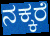
ನಕ್ಕರೆ